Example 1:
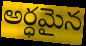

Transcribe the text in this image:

అర్ధమైన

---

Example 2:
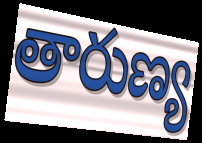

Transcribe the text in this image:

తారుణ్య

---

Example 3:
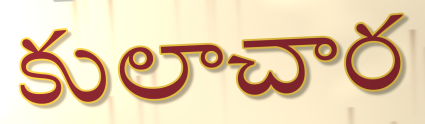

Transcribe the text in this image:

కులాచార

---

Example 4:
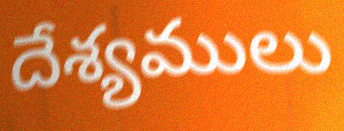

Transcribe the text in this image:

దేశ్యములు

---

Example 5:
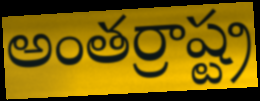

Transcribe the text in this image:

అంతర్రాష్ట్ర